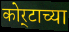
कोर्टाच्या